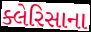
ક્લેરિસાના